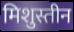
मिशुस्तीन